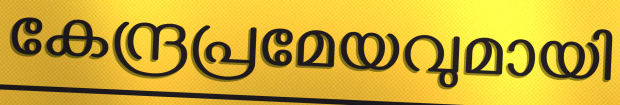
കേന്ദ്രപ്രമേയവുമായി